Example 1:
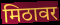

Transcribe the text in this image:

मिठावर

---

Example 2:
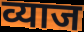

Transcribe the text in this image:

व्याज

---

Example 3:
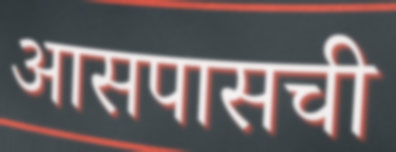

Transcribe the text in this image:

आसपासची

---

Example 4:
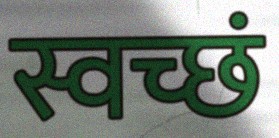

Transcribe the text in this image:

स्वच्छं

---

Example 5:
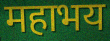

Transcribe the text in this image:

महाभय